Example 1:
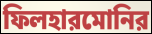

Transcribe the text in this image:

ফিলহারমোনির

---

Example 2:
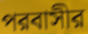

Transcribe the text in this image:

পরবাসীর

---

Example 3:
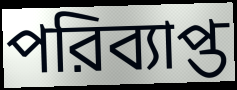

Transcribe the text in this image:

পরিব্যাপ্ত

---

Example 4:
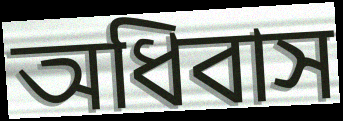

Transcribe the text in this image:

অধিবাস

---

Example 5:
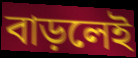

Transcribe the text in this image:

বাড়লেই